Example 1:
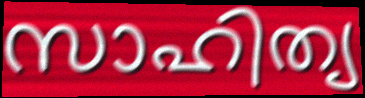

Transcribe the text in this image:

സാഹിത്യ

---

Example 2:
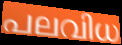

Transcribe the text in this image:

പലവിധ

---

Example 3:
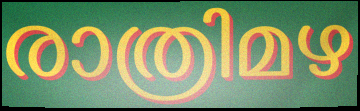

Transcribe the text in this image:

രാത്രിമഴ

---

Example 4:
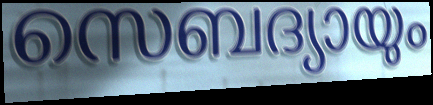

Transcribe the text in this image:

സെബദ്യായും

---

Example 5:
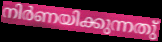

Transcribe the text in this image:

നിർണയിക്കുന്നതു്